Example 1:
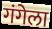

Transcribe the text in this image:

गंगेला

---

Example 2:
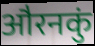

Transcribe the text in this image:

औरनकुं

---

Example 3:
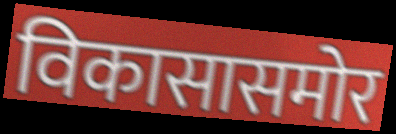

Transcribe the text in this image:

विकासासमोर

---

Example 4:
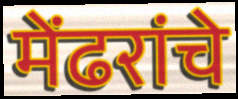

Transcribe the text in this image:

मेंढरांचे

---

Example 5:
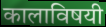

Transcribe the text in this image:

कालाविषयी